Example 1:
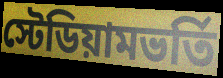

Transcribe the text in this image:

স্টেডিয়ামভর্তি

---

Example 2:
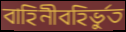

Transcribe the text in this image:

বাহিনীবহির্ভুত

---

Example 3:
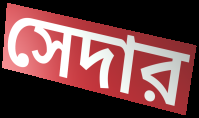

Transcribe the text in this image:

সেদার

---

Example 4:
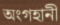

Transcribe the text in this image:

অংগহানী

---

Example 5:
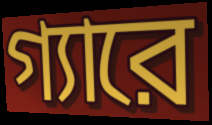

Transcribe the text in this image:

গ্যারে